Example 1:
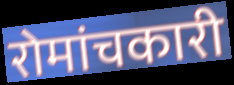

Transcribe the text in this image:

रोमांचकारी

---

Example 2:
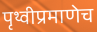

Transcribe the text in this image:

पृथ्वीप्रमाणेच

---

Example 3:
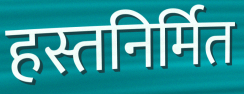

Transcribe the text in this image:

हस्तनिर्मित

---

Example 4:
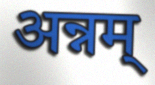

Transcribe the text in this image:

अन्नम्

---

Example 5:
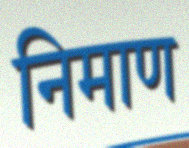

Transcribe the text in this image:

निमाण